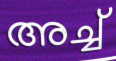
അച്ച്